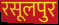
रसूलपुर